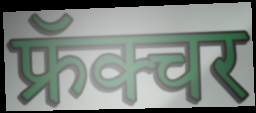
फ्रॅक्चर